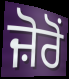
ਜ਼ੋਰੋਂ